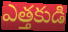
ఎత్తకుడి